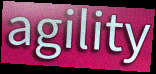
agility